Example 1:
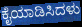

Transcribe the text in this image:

ಕೈಯಾಡಿಸಿದಳು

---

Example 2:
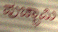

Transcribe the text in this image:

ಪುಚ್ಛಾಮಿ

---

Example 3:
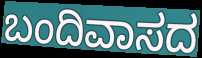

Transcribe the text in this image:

ಬಂದಿವಾಸದ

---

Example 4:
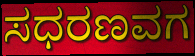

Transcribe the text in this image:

ಸಧರಣವಗ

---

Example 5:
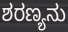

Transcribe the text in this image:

ಶರಣ್ಯನು